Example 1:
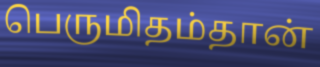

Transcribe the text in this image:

பெருமிதம்தான்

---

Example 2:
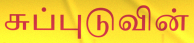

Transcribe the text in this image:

சுப்புடுவின்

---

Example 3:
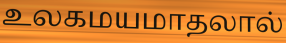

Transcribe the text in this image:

உலகமயமாதலால்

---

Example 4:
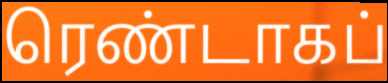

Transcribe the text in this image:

ரெண்டாகப்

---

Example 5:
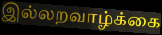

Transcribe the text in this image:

இல்லறவாழ்க்கை